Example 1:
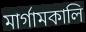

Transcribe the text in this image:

মাৰ্গামকালি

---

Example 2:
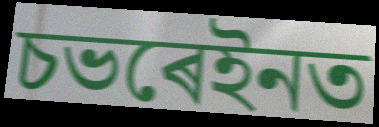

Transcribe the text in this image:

চভৰেইনত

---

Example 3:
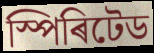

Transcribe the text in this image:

স্পিৰিটেড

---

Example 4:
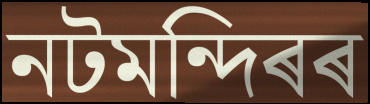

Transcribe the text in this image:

নটমন্দিৰৰ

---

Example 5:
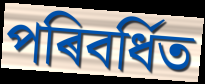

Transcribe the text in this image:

পৰিবৰ্ধিত